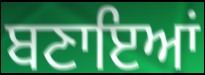
ਬਣਾਇਆਂ